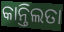
କାନ୍ତିଲତା